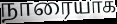
நாரையாக